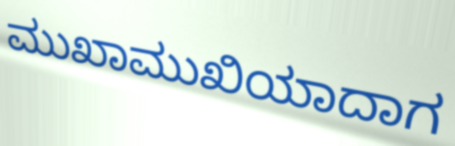
ಮುಖಾಮುಖಿಯಾದಾಗ